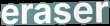
eraser